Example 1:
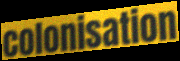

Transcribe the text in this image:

colonisation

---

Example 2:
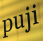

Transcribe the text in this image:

puji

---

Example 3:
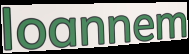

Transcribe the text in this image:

Ioannem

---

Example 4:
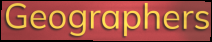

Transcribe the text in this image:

Geographers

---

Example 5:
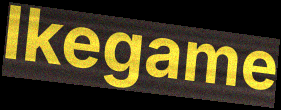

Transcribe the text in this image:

Ikegame